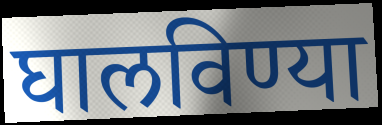
घालविण्या